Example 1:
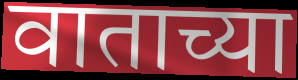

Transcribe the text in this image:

वाताच्या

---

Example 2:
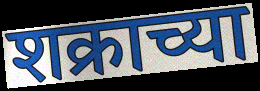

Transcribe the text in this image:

शक्राच्या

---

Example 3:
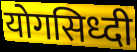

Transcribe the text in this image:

योगसिध्दी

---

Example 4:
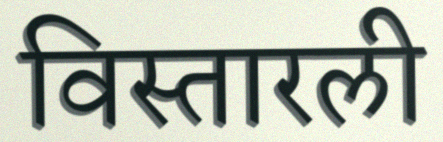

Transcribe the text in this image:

विस्तारली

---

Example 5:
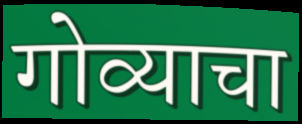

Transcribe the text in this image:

गोव्याचा